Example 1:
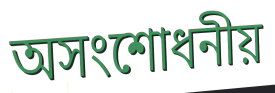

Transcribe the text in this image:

অসংশোধনীয়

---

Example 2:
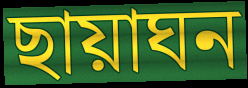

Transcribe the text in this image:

ছায়াঘন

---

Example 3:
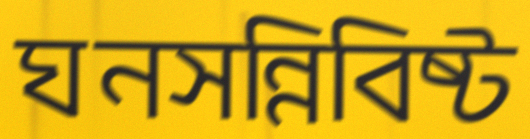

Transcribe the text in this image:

ঘনসন্নিবিষ্ট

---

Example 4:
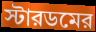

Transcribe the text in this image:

স্টারডমের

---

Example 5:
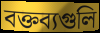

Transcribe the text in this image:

বক্তব্যগুলি